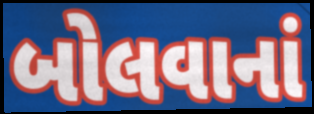
બોલવાનાં